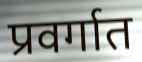
प्रवर्गात